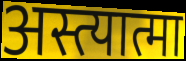
अस्त्यात्मा